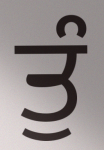
ਤੁੰ